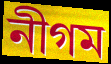
নীগম